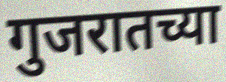
गुजरातच्या